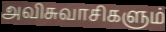
அவிசுவாசிகளும்